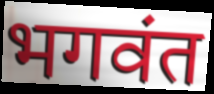
भगवंत